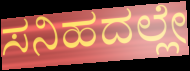
ಸನಿಹದಲ್ಲೇ